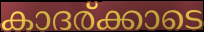
കാദര്ക്കാടെ